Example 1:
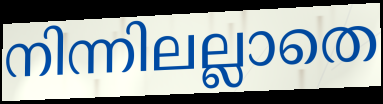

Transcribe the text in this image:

നിന്നിലല്ലാതെ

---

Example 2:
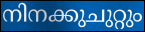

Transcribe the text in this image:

നിനക്കുചുറ്റും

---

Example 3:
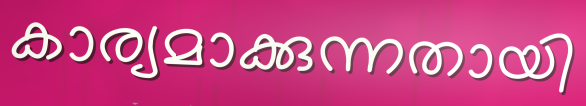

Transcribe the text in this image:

കാര്യമാക്കുന്നതായി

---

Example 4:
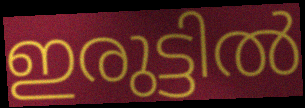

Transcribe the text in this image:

ഇരുട്ടിൽ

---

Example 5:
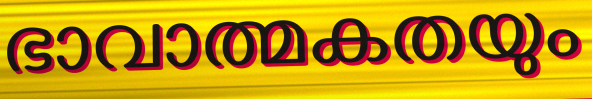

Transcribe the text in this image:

ഭാവാത്മകതയും